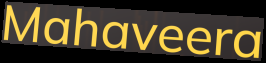
Mahaveera